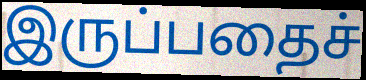
இருப்பதைச்